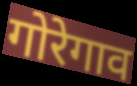
गोरेगाव